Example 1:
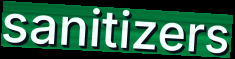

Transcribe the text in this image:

sanitizers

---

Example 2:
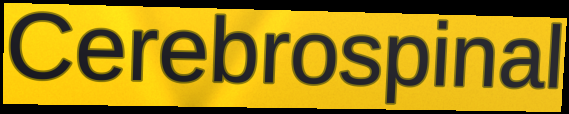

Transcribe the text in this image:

Cerebrospinal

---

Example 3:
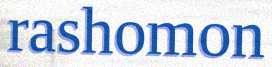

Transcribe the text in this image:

rashomon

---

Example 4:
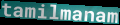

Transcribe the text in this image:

tamilmanam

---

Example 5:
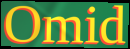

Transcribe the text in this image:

Omid